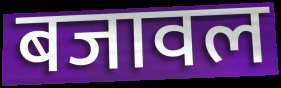
बजावल